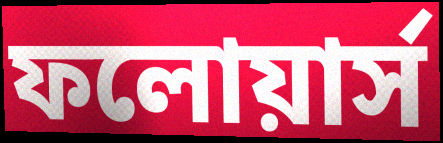
ফলোয়ার্স